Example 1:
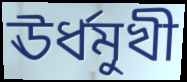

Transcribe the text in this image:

ঊর্ধমুখী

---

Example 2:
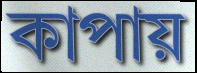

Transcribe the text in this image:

কাপায়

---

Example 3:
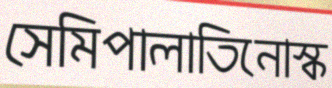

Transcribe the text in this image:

সেমিপালাতিনোস্ক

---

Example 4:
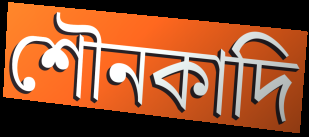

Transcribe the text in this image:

শৌনকাদি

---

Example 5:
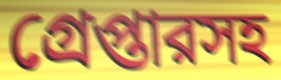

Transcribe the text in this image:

গ্রেপ্তারসহ